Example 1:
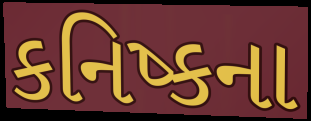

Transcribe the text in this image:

કનિષ્કના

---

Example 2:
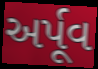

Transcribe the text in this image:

અર્પૂવ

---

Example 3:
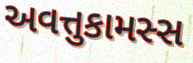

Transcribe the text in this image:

અવત્તુકામસ્સ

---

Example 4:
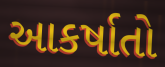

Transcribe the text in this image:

આકર્ષાતો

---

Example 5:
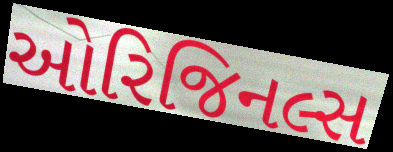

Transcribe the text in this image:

ઓરિજિનલ્સ